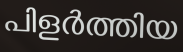
പിളർത്തിയ